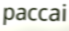
paccai